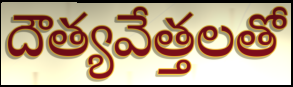
దౌత్యవేత్తలతో